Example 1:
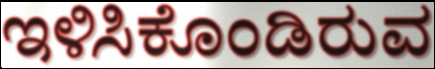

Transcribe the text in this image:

ಇಳಿಸಿಕೊಂಡಿರುವ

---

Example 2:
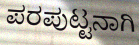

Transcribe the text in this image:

ಪರಪುಟ್ಟನಾಗಿ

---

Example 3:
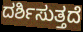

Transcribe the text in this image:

ದರ್ಶಿಸುತ್ತದೆ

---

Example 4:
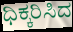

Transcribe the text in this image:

ಧಿಕ್ಕರಿಸಿದ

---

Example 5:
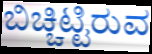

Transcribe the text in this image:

ಬಿಚ್ಚಿಟ್ಟಿರುವ